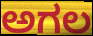
ಅಗಲ